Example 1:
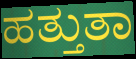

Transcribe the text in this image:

ಹತ್ತುತಾ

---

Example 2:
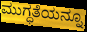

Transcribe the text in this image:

ಮುಗ್ಧತೆಯನ್ನೂ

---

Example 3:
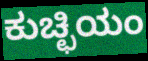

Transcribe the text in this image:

ಕುಚ್ಛಿಯಂ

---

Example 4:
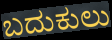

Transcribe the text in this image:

ಬದುಕುಲು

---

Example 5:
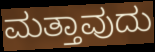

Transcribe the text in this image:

ಮತ್ತಾವುದು